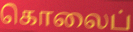
கொலைப்